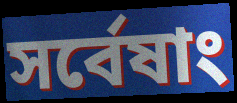
সর্বেষাং